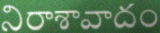
నిరాశావాదం